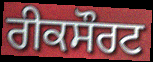
ਰੀਕਸੌਰਟ